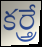
కర్త్రే